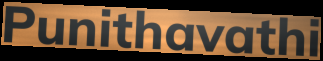
Punithavathi